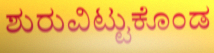
ಶುರುವಿಟ್ಟುಕೊಂಡ